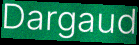
Dargaud